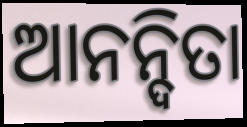
ଆନନ୍ଦିତା